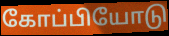
கோப்பியோடு